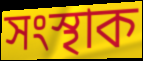
সংস্থাক